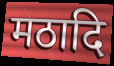
मठादि